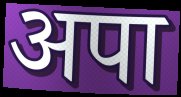
अपा